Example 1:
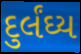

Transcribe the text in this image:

દુર્લંઘ્ય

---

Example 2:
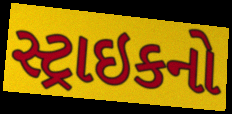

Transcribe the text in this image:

સ્ટ્રાઇકનો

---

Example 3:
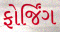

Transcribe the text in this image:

ફોર્જિંગ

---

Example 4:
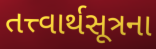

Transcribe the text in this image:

તત્ત્વાર્થસૂત્રના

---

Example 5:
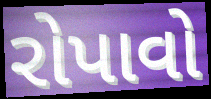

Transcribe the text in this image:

રોપાવો